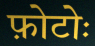
फ़ोटोः